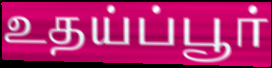
உதய்ப்பூர்